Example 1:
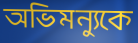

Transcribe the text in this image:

অভিমন্যুকে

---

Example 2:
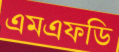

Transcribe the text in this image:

এমএফডি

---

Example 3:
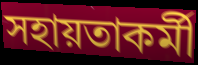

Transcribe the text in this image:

সহায়তাকর্মী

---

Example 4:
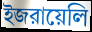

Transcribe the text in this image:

ইজরায়েলি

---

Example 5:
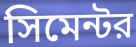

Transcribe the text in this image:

সিমেন্টর